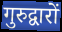
गुरुद्वारों